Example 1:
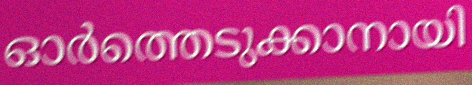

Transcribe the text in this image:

ഓർത്തെടുക്കാനായി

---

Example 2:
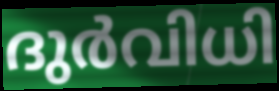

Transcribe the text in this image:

ദുർവിധി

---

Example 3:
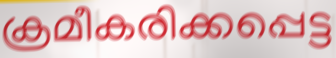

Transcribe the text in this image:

ക്രമീകരിക്കപ്പെട്ട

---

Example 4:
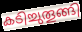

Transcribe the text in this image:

കടിച്ചുതൂങ്ങി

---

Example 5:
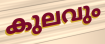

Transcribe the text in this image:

കുലവും